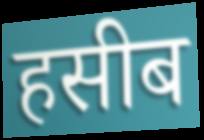
हसीब